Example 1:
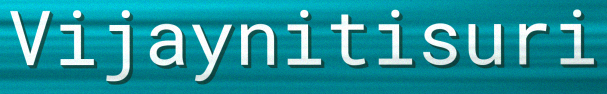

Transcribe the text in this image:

Vijaynitisuri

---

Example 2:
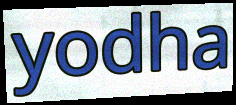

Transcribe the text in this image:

yodha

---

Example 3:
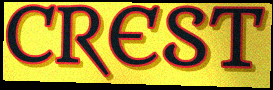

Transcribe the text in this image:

CREST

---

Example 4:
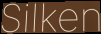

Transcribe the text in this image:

Silken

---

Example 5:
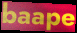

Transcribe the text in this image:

baape